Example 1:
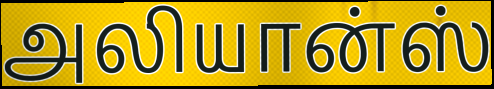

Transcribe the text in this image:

அலியான்ஸ்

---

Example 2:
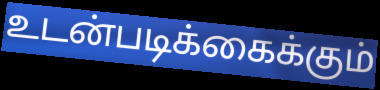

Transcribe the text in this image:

உடன்படிக்கைக்கும்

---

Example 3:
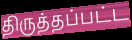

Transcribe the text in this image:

திருத்தப்பட்ட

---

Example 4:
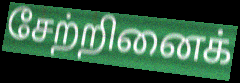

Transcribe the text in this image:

சேற்றினைக்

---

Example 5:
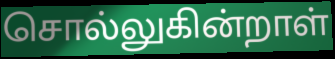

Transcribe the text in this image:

சொல்லுகின்றாள்